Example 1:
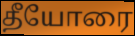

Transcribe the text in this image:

தீயோரை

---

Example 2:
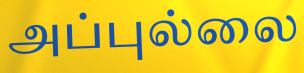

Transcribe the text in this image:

அப்புல்லை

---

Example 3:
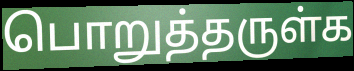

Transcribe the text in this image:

பொறுத்தருள்க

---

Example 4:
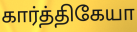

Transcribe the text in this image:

கார்த்திகேயா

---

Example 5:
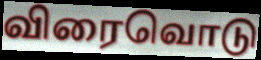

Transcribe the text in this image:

விரைவொடு